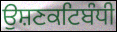
ਉਸ਼ਣਕਟਿਬੰਧੀ